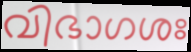
വിഭാഗശഃ